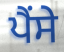
ਪੈਂਸੇ